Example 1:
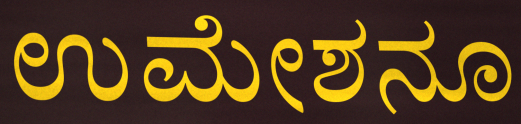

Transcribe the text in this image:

ಉಮೇಶನೂ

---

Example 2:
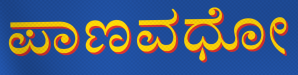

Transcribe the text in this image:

ಪಾಣವಧೋ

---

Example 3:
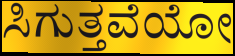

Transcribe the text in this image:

ಸಿಗುತ್ತವೆಯೋ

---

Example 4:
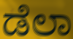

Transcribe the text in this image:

ಡೆಲಾ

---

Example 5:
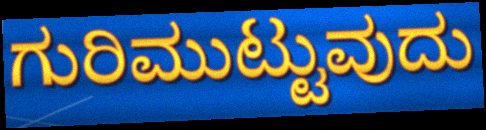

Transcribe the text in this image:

ಗುರಿಮುಟ್ಟುವುದು